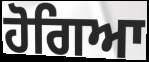
ਹੋਗਿਆ